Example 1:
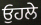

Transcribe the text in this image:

ਓੁਹਲੇ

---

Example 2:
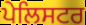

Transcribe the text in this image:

ਪੇਲਿਸਟਰ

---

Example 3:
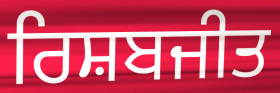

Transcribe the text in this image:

ਰਿਸ਼ਬਜੀਤ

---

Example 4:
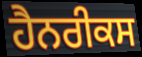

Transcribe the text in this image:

ਹੈਨਰੀਕਸ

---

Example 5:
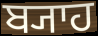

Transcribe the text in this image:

ਬ੍ਯਾਹ